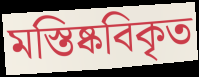
মস্তিষ্কবিকৃত